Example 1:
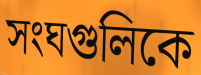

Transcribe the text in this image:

সংঘগুলিকে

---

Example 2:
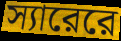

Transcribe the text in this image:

স্যারেরে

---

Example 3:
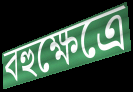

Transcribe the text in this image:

বহুক্ষেত্রে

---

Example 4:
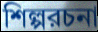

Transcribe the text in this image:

শিল্পরচনা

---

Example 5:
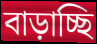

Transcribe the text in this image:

বাড়াচ্ছি